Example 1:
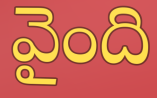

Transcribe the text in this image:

వైంది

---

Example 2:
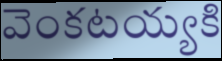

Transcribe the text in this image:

వెంకటయ్యకి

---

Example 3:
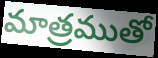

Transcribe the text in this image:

మాత్రముతో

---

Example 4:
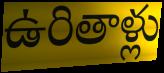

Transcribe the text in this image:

ఉరితాళ్లు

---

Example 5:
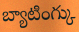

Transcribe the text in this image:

బ్యాటింగ్కు